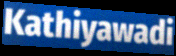
Kathiyawadi